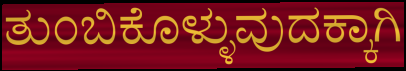
ತುಂಬಿಕೊಳ್ಳುವುದಕ್ಕಾಗಿ